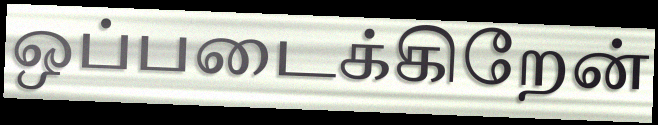
ஒப்படைக்கிறேன்